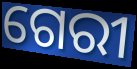
ଗେରୀ